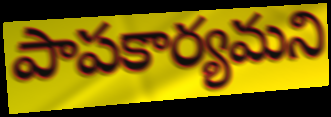
పాపకార్యమని